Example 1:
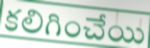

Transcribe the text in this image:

కలిగించేయి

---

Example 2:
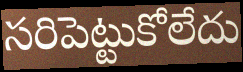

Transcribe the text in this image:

సరిపెట్టుకోలేదు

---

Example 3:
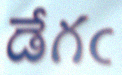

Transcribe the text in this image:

డేగఁ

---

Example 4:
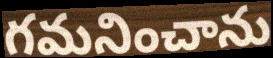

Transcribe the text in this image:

గమనించాను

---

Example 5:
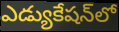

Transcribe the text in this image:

ఎడ్యుకేషన్‌లో